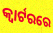
କ୍ବାର୍ଟରରେ